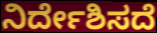
ನಿರ್ದೇಶಿಸದೆ